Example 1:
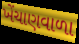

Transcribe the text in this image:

ખેંચાણવાળા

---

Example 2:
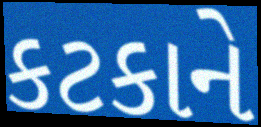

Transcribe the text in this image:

કટકાને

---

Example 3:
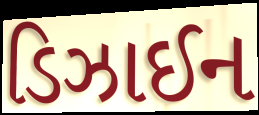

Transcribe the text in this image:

ડિઝાઈન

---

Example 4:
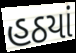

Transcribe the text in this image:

હઠયાં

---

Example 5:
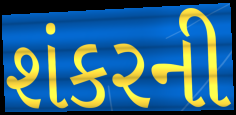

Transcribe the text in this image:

શંકરની